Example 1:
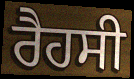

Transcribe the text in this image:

ਰੈਹਸੀ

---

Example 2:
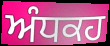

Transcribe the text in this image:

ਅੰਧਕਹ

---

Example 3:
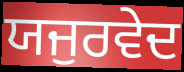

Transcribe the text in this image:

ਯਜੁਰਵੇਦ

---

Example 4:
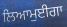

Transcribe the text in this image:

ਲਿਆਮੁਈਗਾ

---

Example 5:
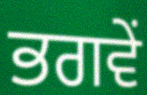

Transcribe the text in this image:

ਭਗਵੇਂ